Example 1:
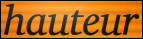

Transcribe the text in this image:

hauteur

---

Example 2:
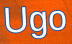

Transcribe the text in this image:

Ugo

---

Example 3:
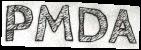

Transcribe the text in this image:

PMDA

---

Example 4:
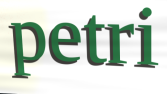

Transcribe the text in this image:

petri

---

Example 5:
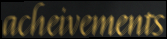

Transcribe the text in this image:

acheivements